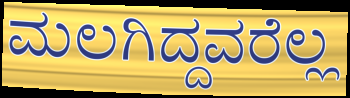
ಮಲಗಿದ್ದವರೆಲ್ಲ